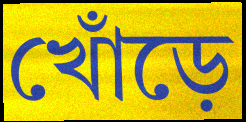
খোঁড়ে